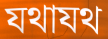
যথাযথ